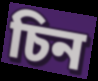
চিন